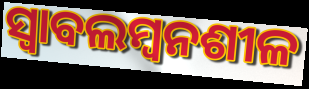
ସ୍ୱାବଲମ୍ୱନଶୀଳ